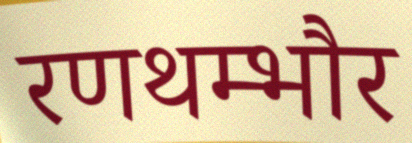
रणथम्भौर